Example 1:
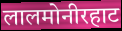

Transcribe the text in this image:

लालमोनीरहाट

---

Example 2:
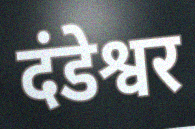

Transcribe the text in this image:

दंडेश्वर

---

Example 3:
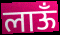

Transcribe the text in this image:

लाऊँ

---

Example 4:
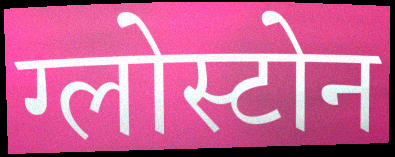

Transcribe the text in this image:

ग्लोस्टोन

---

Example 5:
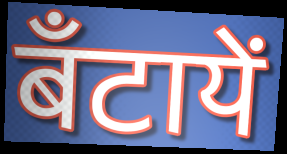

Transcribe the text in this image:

बँटायें